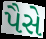
પૈસે